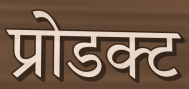
प्रोडक्ट